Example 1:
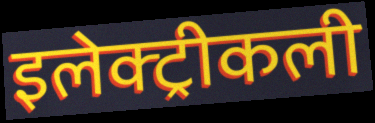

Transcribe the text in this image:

इलेक्ट्रीकली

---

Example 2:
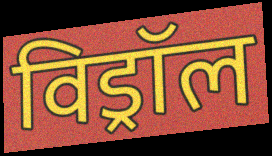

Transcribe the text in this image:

विड्रॉल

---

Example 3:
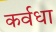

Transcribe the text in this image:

कर्वधा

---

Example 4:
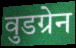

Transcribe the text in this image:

वुडग्रेन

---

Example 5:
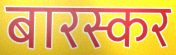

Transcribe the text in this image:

बारस्कर